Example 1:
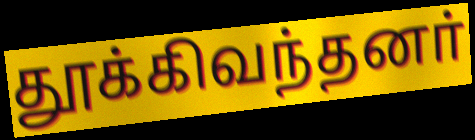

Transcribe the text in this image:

தூக்கிவந்தனர்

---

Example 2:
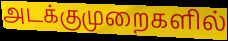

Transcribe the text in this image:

அடக்குமுறைகளில்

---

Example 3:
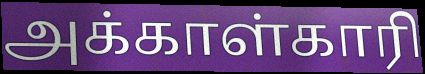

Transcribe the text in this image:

அக்காள்காரி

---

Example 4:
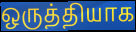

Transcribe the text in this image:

ஒருத்தியாக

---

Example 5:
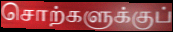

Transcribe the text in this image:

சொற்களுக்குப்